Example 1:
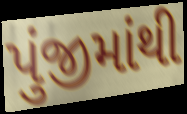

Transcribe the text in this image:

પુંજીમાંથી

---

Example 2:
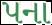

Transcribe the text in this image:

પના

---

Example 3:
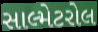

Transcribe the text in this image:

સાલ્મેટરોલ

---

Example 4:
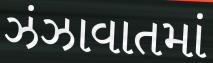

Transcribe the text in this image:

ઝંઝાવાતમાં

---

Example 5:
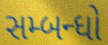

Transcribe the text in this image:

સમ્બન્ધો